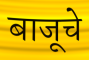
बाजूचे